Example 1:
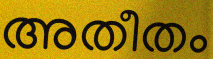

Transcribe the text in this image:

അതീതം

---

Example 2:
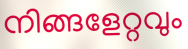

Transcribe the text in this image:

നിങ്ങളേറ്റവും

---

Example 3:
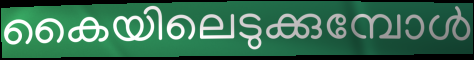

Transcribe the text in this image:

കൈയിലെടുക്കുമ്പോൾ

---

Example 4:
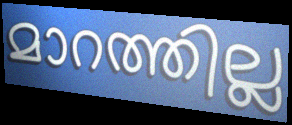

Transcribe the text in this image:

മാറത്തില്ല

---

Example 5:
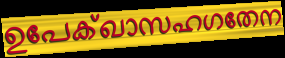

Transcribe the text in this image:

ഉപേക്ഖാസഹഗതേന